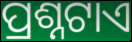
ପ୍ରଶ୍ନଟାଏ